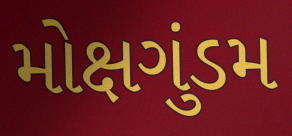
મોક્ષગુંડમ